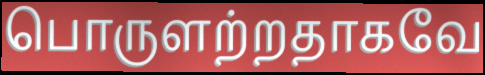
பொருளற்றதாகவே